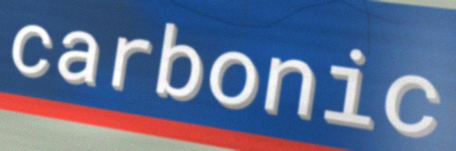
carbonic